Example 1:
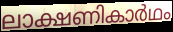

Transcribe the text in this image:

ലാക്ഷണികാർഥം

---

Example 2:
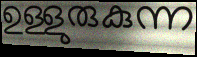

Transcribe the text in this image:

ഉള്ളുരുകുന്ന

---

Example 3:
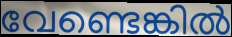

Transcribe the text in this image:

വേണ്ടെങ്കിൽ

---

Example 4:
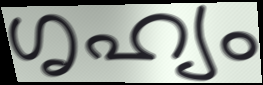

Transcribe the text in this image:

ഗൃഹ്യം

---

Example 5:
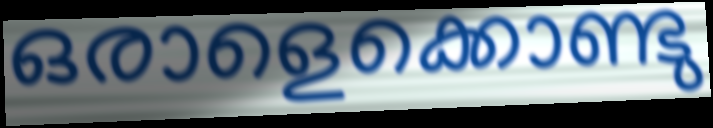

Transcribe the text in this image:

ഒരാളെക്കൊണ്ടു